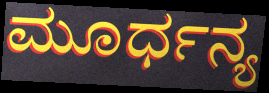
ಮೂರ್ಧನ್ಯ